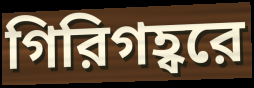
গিরিগহ্বরে